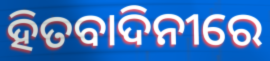
ହିତବାଦିନୀରେ